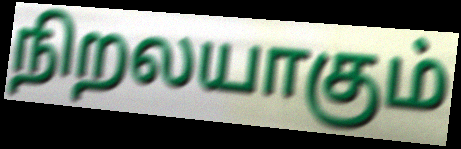
நிறலயாகும்